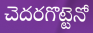
చెదరగొట్టెనో